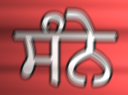
ਸੰਨੇ